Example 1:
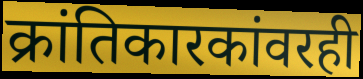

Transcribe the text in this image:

क्रांतिकारकांवरही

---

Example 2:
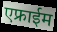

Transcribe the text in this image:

एफ्राईम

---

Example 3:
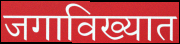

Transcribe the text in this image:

जगाविख्यात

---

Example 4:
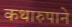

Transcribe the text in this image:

कथारुपाने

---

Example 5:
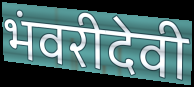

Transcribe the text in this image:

भंवरीदेवी